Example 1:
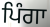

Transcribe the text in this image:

ਪਿੰਗਾ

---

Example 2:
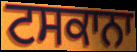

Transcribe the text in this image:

ਟਸਕਾਨਾ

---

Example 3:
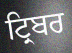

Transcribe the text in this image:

ਟ੍ਰਿਬਰ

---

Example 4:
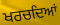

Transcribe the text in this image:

ਖਰਚਦਿਆਂ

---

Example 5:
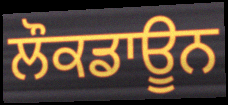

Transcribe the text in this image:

ਲੌਕਡਾਊਨ